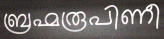
ബ്രഹ്മരൂപിണീ